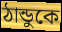
ঠান্ডুকে